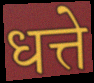
धत्ते